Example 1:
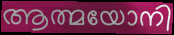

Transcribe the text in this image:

ആത്മയോനി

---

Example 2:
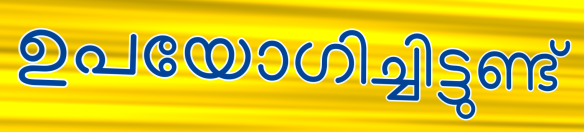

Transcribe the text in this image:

ഉപയോഗിച്ചിട്ടുണ്ട്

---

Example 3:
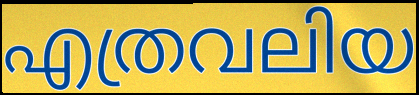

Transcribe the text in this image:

എത്രവലിയ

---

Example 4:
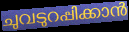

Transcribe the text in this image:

ചുവടുറപ്പിക്കാൻ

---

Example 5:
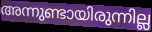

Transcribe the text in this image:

അന്നുണ്ടായിരുന്നില്ല